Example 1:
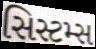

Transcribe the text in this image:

સિસ્ટમ્સ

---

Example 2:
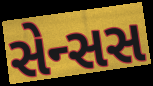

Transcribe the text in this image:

સેન્સસ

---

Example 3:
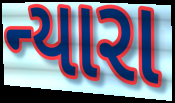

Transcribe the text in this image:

ન્યારા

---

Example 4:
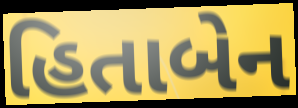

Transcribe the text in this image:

હિતાબેન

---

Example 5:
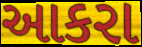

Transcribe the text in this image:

આકરા